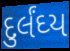
દુર્લંઘ્ય